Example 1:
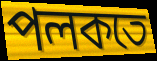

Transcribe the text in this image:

পলকতে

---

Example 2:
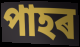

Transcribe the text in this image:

পাহৰ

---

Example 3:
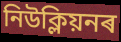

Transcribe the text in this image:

নিউক্লিয়নৰ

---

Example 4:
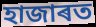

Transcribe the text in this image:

হাজাৰত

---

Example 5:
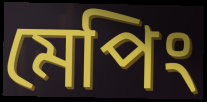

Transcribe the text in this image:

মেপিং